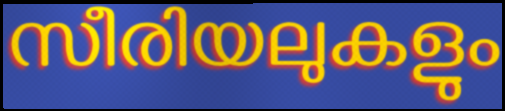
സീരിയലുകളും